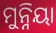
ମୁନ୍ନିୟା